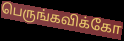
பெருங்கவிக்கோ